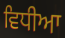
ਵਿਧੀਆ